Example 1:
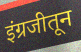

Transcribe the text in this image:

इंग्रजीतून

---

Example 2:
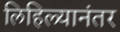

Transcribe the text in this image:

लिहिल्यानंतर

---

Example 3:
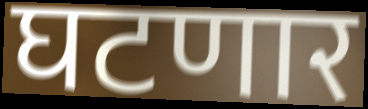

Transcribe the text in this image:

घटणार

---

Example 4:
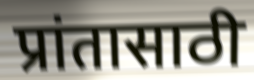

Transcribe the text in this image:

प्रांतासाठी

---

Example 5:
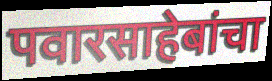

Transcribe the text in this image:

पवारसाहेबांचा